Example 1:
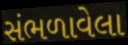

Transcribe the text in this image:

સંભળાવેલા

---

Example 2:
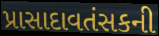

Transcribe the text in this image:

પ્રાસાદાવતંસકની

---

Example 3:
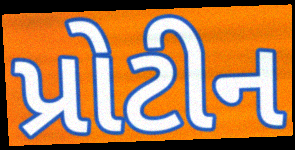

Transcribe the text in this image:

પ્રોટીન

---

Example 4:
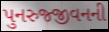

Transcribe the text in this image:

પુનરુજ્જીવનની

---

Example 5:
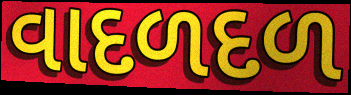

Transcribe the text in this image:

વાદળદળ